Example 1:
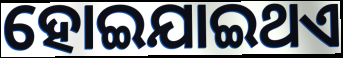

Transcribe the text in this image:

ହୋଇଯାଇଥଏ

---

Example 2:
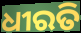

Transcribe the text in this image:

ଧୀରତି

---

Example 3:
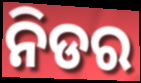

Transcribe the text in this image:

ନିଡର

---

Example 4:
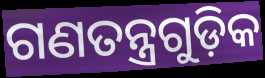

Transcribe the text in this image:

ଗଣତନ୍ତ୍ରଗୁଡ଼ିକ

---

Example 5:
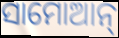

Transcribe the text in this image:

ସାମୋଆନ୍